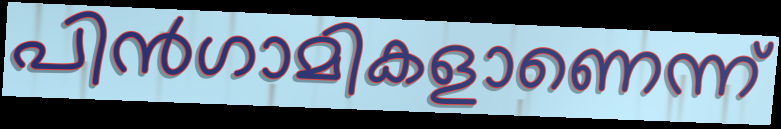
പിൻഗാമികളാണെന്ന്